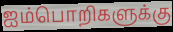
ஐம்பொறிகளுக்கு